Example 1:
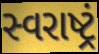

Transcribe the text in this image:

સ્વરાષ્ટ્રં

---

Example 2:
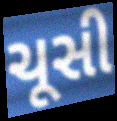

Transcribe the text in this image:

ચૂસી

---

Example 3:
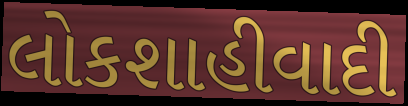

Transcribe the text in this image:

લોકશાહીવાદી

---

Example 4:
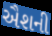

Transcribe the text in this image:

ઐશની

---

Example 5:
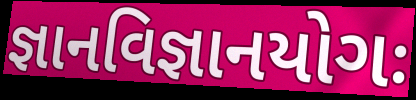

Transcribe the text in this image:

જ્ઞાનવિજ્ઞાનયોગઃ